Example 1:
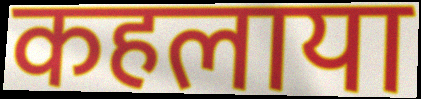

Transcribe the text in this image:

कहलाया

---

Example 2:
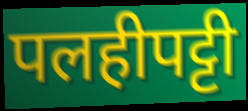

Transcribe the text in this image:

पलहीपट्टी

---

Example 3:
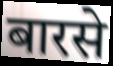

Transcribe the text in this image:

बारसे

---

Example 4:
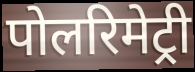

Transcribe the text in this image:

पोलरिमेट्री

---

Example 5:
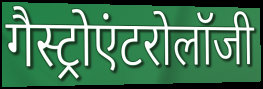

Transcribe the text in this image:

गैस्ट्रोएंटरोलॉजी